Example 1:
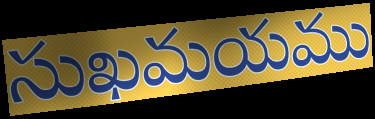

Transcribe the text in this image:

సుఖమయము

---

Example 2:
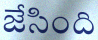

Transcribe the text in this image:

జేసింది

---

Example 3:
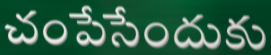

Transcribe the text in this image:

చంపేసేందుకు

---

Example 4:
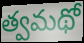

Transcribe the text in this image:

త్వమథో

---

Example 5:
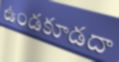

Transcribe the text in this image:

ఉండకూడదా